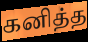
கனித்த